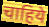
चाहिये